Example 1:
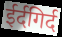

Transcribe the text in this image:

ईर्दगिर्द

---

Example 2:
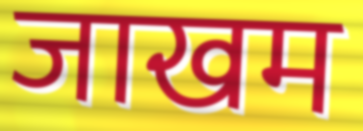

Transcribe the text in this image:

जाखम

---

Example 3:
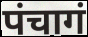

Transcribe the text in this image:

पंचागं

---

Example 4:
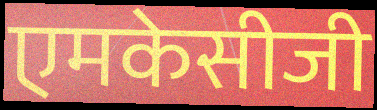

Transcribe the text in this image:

एमकेसीजी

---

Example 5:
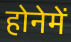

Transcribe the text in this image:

होनेमें